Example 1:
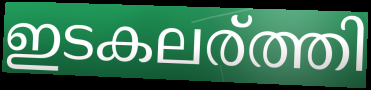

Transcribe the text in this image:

ഇടകലര്ത്തി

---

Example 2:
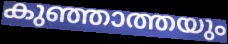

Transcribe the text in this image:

കുഞ്ഞാത്തയും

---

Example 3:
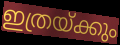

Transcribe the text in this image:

ഇത്രയ്ക്കും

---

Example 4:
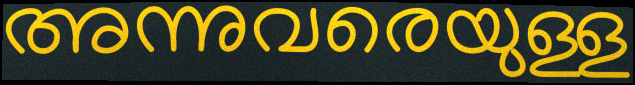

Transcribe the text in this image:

അന്നുവരെയുള്ള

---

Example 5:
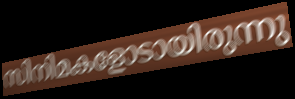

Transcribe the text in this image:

സിനിമകളോടായിരുന്നു